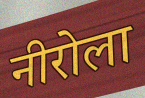
नीरोला